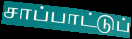
சாப்பாட்டுப்